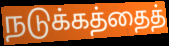
நடுக்கத்தைத்